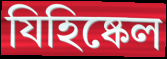
যিহিষ্কেল